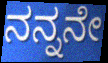
ನನ್ನನೇ